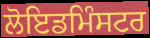
ਲੋਇਡਮਿੰਸਟਰ